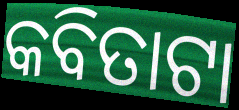
କବିତାଟା